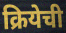
क्रियेची